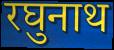
रघुनाथ